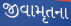
જીવામૃતના